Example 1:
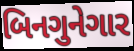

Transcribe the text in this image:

બિનગુનેગાર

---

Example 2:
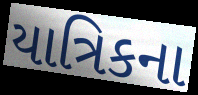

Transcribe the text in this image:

યાત્રિકના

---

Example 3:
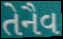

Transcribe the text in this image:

તેનૈવ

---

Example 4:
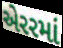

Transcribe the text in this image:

એરરમાં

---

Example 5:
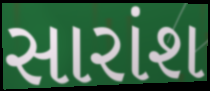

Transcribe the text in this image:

સારાંશ